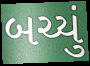
બચ્યું